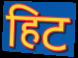
हिट